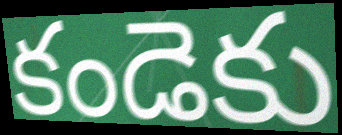
కండెకు